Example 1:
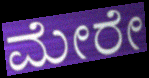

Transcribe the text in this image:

ಮೇರೇ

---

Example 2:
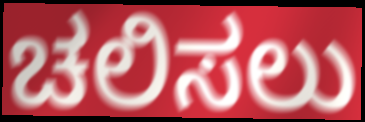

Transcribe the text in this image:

ಚಲಿಸಲು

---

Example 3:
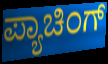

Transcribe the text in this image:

ಪ್ಯಾಚಿಂಗ್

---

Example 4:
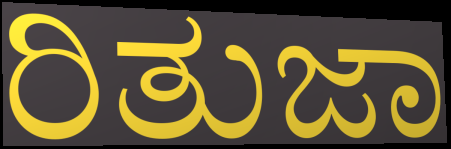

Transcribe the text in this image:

ರಿತುಜಾ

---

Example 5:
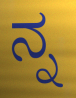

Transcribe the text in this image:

ನ್ನ